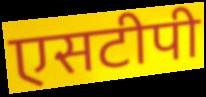
एसटीपी